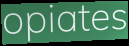
opiates